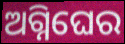
ଅଗ୍ନିଘେର